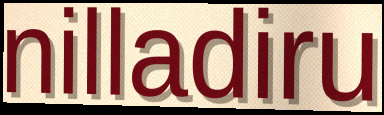
nilladiru